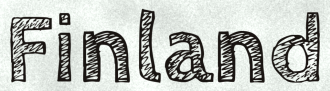
Finland